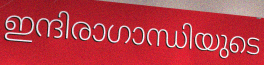
ഇന്ദിരാഗാന്ധിയുടെ